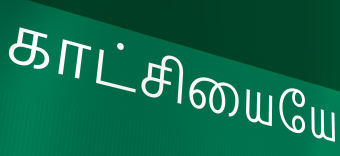
காட்சியையே